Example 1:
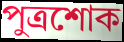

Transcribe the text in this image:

পুত্রশোক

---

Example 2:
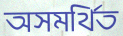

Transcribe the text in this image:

অসমর্থিত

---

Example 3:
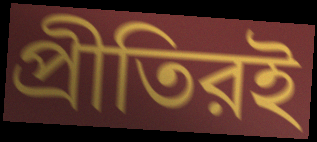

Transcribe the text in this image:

প্রীতিরই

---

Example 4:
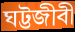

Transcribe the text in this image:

ঘট্টজীবী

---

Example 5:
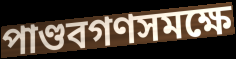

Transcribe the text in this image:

পাণ্ডবগণসমক্ষে